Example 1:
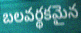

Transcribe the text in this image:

బలవర్థకమైన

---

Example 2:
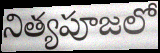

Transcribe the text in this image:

నిత్యపూజలో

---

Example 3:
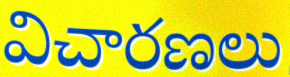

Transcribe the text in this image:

విచారణలు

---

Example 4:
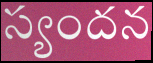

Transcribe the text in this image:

స్యందన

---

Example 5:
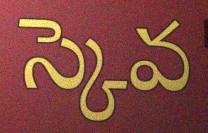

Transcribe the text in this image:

స్కెవ